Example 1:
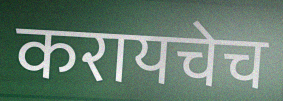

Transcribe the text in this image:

करायचेच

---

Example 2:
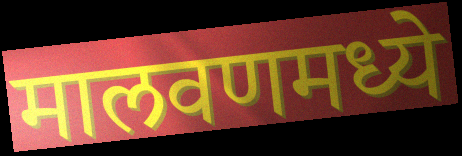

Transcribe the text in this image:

मालवणमध्ये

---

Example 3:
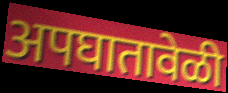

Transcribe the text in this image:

अपघातावेळी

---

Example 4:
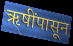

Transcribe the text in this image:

ऋषींपासून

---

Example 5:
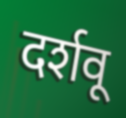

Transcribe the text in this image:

दर्शवू